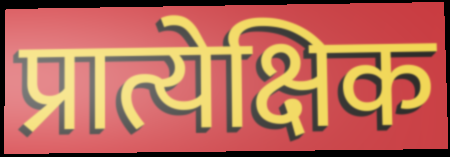
प्रात्येक्षिक